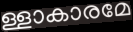
ള്ളാകാരമേ